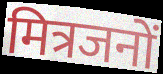
मित्रजनों